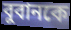
বুবানকে